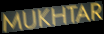
MUKHTAR